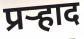
प्रर्‍हाद